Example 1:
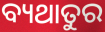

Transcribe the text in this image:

ବ୍ୟଥାତୁର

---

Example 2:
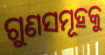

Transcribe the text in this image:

ଗୁଣସମୂହକୁ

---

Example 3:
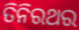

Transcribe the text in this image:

ତିନିରଥର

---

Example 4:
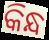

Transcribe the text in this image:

କିନ୍ଧ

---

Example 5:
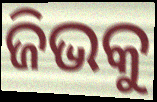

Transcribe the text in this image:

ଜିଭକୁ